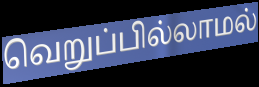
வெறுப்பில்லாமல்